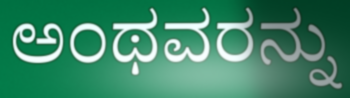
ಅಂಥವರನ್ನು